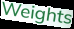
Weights